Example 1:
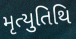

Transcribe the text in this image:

મૃત્યુતિથિ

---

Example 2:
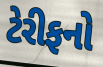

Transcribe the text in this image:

ટેરીફનો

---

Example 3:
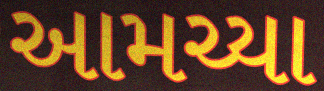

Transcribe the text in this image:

આમચ્યા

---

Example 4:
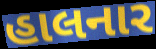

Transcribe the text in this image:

હાલનાર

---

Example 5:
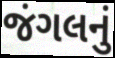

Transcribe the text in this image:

જંગલનું